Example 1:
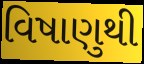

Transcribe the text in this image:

વિષાણુથી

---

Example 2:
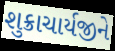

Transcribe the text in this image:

શુક્રાચાર્યજીને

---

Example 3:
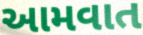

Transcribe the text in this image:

આમવાત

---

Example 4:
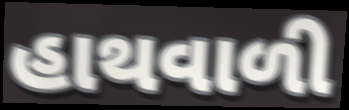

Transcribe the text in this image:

હાથવાળી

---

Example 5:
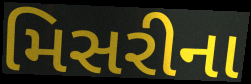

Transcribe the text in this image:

મિસરીના